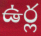
ఉర్ల